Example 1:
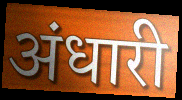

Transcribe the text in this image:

अंधारी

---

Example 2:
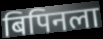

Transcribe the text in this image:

बिपिनला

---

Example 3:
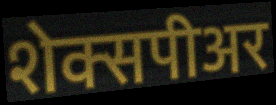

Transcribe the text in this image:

शेक्सपीअर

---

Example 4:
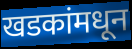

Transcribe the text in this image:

खडकांमधून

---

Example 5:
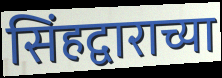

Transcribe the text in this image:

सिंहद्वाराच्या